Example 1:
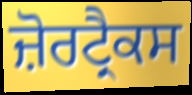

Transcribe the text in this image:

ਜ਼ੋਰਟ੍ਰੈਕਸ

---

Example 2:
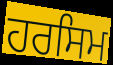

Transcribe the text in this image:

ਹਰਸਿਮ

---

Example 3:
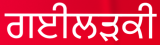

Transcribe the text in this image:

ਗਈਲੜਕੀ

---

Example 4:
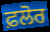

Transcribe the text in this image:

ਫ਼ਲੋਰ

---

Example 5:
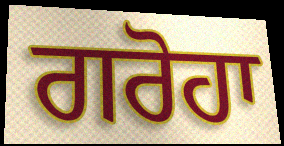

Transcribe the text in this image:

ਗਰੋਹਾ